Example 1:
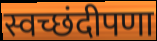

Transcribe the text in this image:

स्वच्छंदीपणा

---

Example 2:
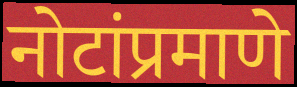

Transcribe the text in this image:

नोटांप्रमाणे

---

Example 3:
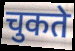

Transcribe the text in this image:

चुकते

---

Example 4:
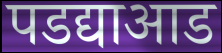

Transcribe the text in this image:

पडद्याआड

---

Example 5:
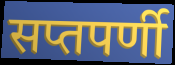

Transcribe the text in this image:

सप्तपर्णी